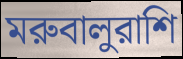
মরুবালুরাশি